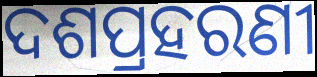
ଦଶପ୍ରହରଣୀ